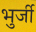
भुर्जी